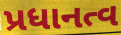
પ્રધાનત્વ